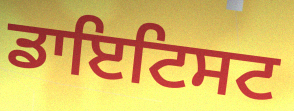
ਡਾਇਟਿਸਟ